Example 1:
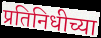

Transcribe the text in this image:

प्रतिनिधीच्या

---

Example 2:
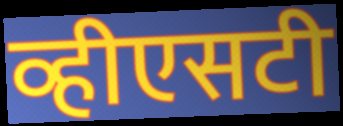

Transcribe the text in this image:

व्हीएसटी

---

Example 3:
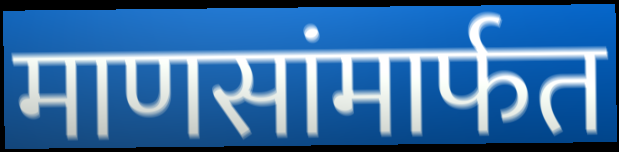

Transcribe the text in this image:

माणसांमार्फत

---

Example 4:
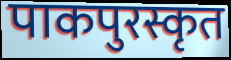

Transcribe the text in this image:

पाकपुरस्कृत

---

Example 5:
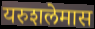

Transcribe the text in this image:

यरुशलेमास